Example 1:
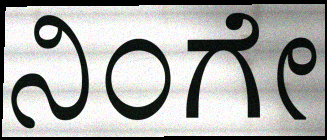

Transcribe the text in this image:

ನಿಂಗೇ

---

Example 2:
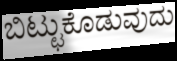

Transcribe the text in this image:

ಬಿಟ್ಟುಕೊಡುವುದು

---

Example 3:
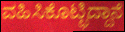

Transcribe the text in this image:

ವಹಿಸಿಕೊಟ್ಟಿದ್ದಾನೆ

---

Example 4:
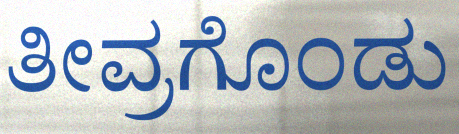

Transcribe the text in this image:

ತೀವ್ರಗೊಂಡು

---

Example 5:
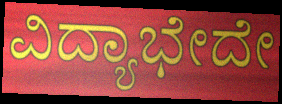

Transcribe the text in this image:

ವಿದ್ಯಾಭೇದೇ